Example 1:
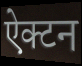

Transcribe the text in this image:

ऐक्टन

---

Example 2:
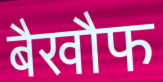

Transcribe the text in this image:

बैखौफ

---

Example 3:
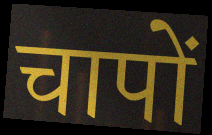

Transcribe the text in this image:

चापों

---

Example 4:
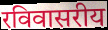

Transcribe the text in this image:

रविवासरीय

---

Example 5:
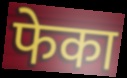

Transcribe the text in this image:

फेका